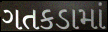
ગતકડામાં